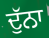
ਦੁੱਨਾ